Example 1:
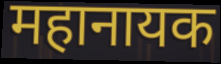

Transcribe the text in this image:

महानायक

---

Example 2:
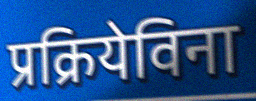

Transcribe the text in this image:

प्रक्रियेविना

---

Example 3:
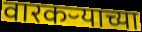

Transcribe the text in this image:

वारकऱ्याच्या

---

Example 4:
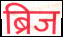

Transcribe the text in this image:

ब्रिज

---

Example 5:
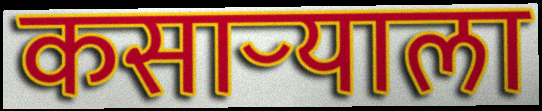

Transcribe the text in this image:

कसाऱ्याला